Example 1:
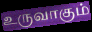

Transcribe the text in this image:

உருவாகும்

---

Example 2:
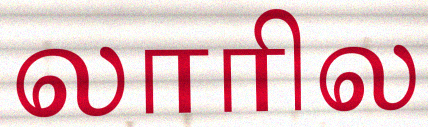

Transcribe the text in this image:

லாரில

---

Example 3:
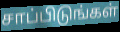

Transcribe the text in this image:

சாப்பிடுங்கள்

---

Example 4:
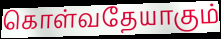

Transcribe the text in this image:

கொள்வதேயாகும்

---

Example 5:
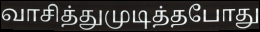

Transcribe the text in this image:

வாசித்துமுடித்தபோது